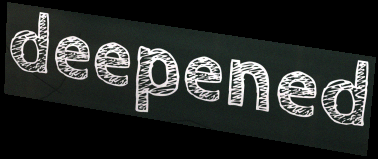
deepened